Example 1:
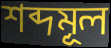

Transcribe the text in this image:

শব্দমূল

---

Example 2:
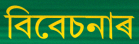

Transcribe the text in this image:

বিবেচনাৰ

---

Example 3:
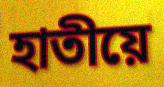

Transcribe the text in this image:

হাতীয়ে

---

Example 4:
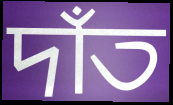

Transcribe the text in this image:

দাঁত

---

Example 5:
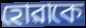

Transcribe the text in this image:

হোৱাকে